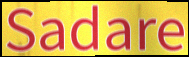
Sadare